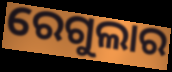
ରେଗୁଲାର